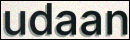
udaan